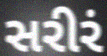
સરીરં